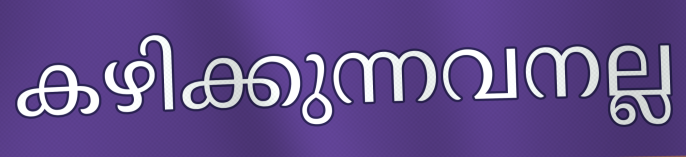
കഴിക്കുന്നവനല്ല